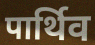
पार्थिव